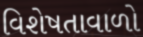
વિશેષતાવાળો